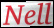
Nell